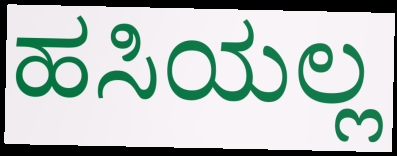
ಹಸಿಯಲ್ಲ